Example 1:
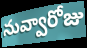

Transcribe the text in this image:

నువ్వారోజు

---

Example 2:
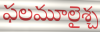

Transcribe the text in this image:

ఫలమూలైశ్చ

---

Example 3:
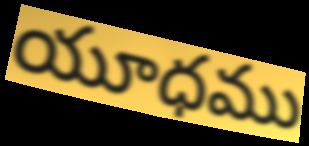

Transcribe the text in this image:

యూధము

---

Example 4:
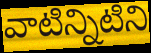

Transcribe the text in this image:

వాటిన్నిటిని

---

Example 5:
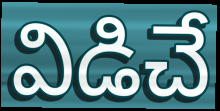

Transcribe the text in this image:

విడిచే